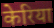
केरिया